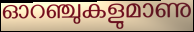
ഓറഞ്ചുകളുമാണു